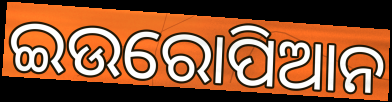
ଇଉରୋପିଆନ